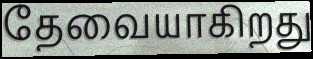
தேவையாகிறது